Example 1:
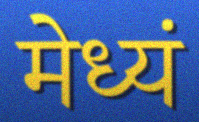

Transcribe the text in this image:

मेध्यं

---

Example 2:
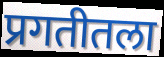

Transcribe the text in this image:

प्रगतीतला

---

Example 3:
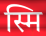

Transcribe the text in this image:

स्मि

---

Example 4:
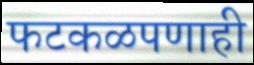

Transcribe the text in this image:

फटकळपणाही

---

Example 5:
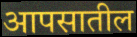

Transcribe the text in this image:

आपसातील